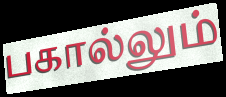
பகால்லும்